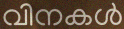
വിനകൾ